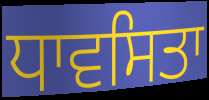
ਧਾਵਸਿਤਾ